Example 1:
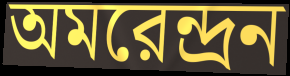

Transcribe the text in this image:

অমরেন্দ্রন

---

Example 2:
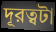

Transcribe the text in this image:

দূরত্বটা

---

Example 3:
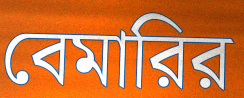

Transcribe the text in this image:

বেমারির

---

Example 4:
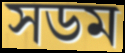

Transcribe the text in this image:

সডম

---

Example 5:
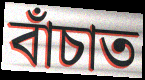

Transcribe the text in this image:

বাঁচাত